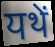
यथें